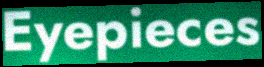
Eyepieces